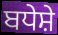
ਬਧੇਸ਼ੇ